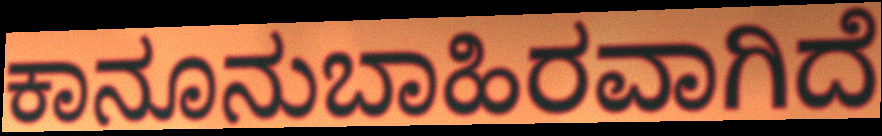
ಕಾನೂನುಬಾಹಿರವಾಗಿದೆ